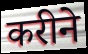
करीने